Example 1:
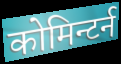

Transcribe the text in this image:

कोमिन्टर्न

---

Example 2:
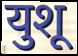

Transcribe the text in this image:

युशू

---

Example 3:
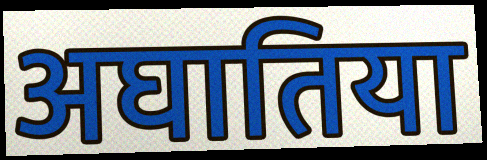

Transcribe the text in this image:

अघातिया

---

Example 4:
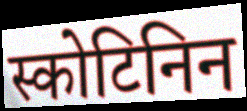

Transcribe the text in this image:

स्कोटिनिन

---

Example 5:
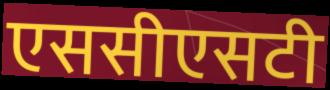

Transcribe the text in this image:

एससीएसटी